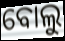
ବୋଲୁ